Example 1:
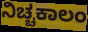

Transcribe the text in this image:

ನಿಚ್ಚಕಾಲಂ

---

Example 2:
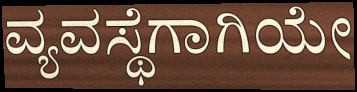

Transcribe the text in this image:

ವ್ಯವಸ್ಥೆಗಾಗಿಯೇ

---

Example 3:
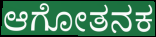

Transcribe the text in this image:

ಆಗೋತನಕ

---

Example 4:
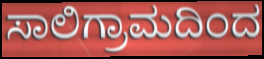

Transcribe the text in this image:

ಸಾಲಿಗ್ರಾಮದಿಂದ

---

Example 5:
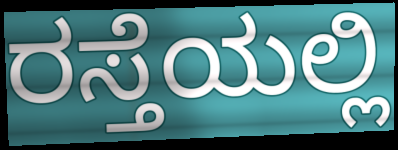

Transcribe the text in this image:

ರಸ್ತೆಯಲ್ಲಿ